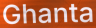
Ghanta